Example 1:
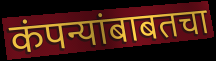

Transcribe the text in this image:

कंपन्यांबाबतचा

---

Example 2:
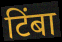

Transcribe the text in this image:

टिंबा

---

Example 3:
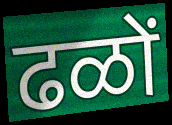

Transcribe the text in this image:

ढळों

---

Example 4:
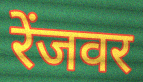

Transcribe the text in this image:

रेंजवर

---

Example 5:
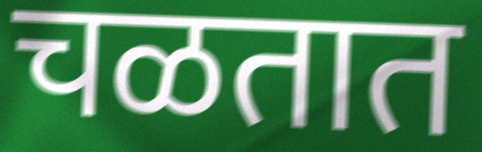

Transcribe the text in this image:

चळतात